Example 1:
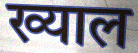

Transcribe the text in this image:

ख्याल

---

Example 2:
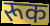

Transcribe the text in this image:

रूक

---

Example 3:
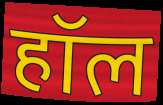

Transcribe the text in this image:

हॉल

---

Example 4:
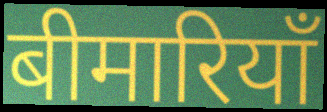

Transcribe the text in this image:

बीमारियाँ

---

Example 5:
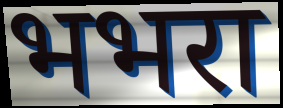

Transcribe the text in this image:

भभरा